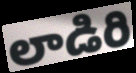
లాడిరి